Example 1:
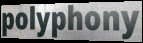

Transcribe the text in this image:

polyphony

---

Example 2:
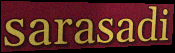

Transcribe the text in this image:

sarasadi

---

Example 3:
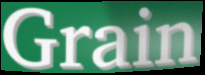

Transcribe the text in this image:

Grain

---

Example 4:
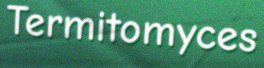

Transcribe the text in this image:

Termitomyces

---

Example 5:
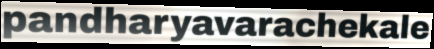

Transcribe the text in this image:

pandharyavarachekale